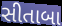
સીતાબા